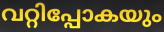
വറ്റിപ്പോകയും